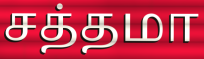
சத்தமா